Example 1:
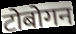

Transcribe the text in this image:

टोबोगन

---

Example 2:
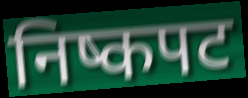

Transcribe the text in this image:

निष्कपट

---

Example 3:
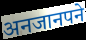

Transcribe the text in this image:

अनजानपने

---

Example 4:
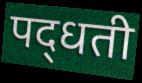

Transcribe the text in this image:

पद्धती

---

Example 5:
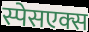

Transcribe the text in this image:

स्‍पेसएक्‍स